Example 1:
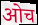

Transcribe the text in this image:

ओच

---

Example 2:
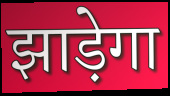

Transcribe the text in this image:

झाड़ेगा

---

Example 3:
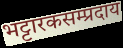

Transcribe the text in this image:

भट्टारकसम्प्रदाय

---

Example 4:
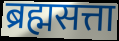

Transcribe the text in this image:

ब्रह्मसत्ता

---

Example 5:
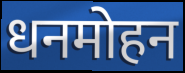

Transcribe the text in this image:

धनमोहन